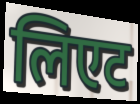
लिएट